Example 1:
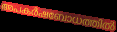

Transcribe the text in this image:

അപകർഷബോധത്തിൽ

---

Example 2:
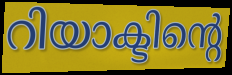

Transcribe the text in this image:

റിയാക്ടിന്റെ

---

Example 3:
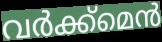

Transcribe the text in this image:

വർക്ക്മെൻ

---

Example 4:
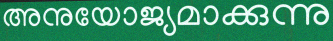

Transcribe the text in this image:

അനുയോജ്യമാക്കുന്നു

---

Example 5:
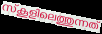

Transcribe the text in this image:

സ്‌കൂളിലെത്തുന്നത്